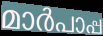
മാർപാപ്പ